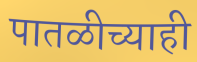
पातळीच्याही